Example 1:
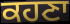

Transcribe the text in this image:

ਕਹਣਾ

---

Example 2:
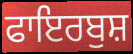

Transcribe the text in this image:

ਫਾਇਰਬੁਸ਼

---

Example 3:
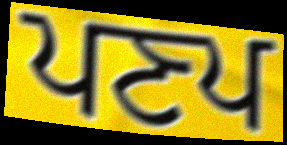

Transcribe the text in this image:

ਪਣਪ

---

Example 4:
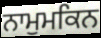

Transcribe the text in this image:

ਨਾਮੁਮਕਿਨ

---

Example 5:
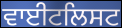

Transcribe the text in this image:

ਵਾਈਟਲਿਸਟ